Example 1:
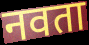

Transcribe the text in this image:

नवता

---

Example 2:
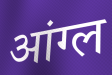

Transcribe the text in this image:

आंग्ल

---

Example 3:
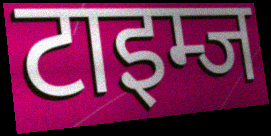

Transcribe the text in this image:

टाइम्ज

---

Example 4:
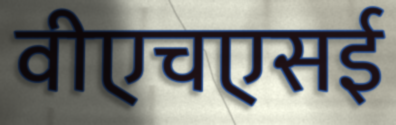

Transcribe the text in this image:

वीएचएसई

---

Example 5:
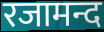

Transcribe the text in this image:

रजामन्द